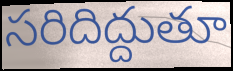
సరిదిద్దుతూ